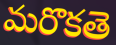
మరొకతె